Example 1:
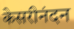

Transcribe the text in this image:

केसरीनंदन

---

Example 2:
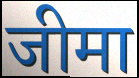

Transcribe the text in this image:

जीमा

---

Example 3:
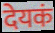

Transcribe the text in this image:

देयकं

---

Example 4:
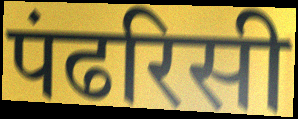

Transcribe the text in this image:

पंढरिसी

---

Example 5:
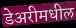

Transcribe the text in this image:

डेअरीमधील